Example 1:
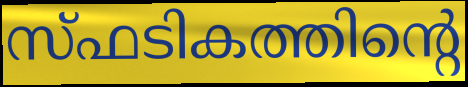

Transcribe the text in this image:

സ്ഫടികത്തിന്റെ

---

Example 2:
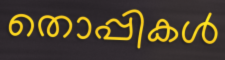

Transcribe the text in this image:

തൊപ്പികൾ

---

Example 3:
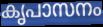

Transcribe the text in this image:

കൃപാസനം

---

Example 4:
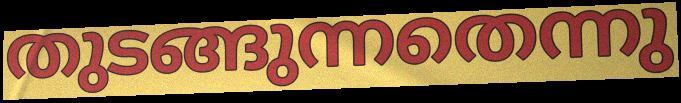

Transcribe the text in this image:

തുടങ്ങുന്നതെന്നു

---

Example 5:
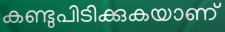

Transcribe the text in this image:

കണ്ടുപിടിക്കുകയാണ്